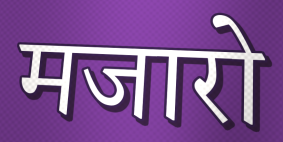
मजारो